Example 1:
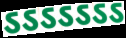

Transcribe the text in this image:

ऽऽऽऽऽऽऽ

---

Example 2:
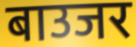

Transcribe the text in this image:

बाउजर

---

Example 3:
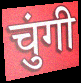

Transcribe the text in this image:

चुंगी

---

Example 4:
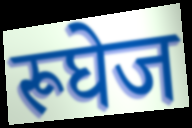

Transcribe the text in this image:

रूघेज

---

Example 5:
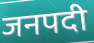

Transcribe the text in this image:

जनपदी